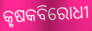
କୃଷକବିରୋଧୀ